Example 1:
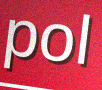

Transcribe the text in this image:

pol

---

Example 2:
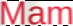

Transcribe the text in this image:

Mam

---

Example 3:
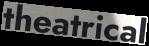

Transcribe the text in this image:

theatrical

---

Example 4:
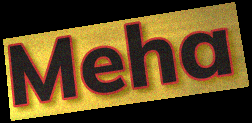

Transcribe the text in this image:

Meha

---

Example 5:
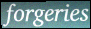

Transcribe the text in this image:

forgeries